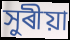
সুৰীয়া